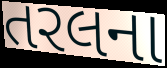
તરલના